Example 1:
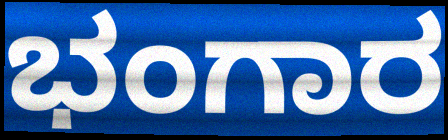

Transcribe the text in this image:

ಭಂಗಾರ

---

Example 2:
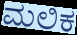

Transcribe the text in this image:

ಮಲಿಕ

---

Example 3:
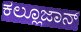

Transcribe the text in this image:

ಕಲ್ಲೂಜಾನ್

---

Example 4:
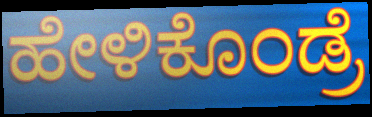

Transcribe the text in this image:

ಹೇಳಿಕೊಂಡ್ರೆ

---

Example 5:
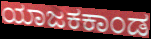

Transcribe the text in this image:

ಯಾಜಕಕಾಂಡ